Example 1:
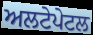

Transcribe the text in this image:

ਅਲਟੇਪੇਟਲ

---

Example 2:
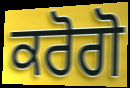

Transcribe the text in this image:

ਕਰੋਗੋ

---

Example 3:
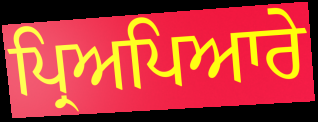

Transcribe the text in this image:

ਪ੍ਰਿਅਪਿਆਰੇ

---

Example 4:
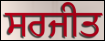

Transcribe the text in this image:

ਸਰਜੀਤ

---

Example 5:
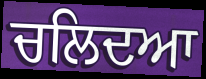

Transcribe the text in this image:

ਚਲਿਦਆ